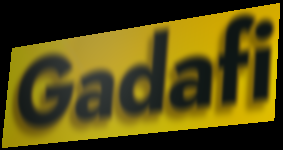
Gadafi